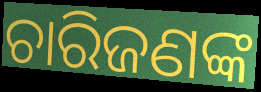
ଚାରିଜଣଙ୍କ